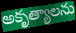
అకృత్యాలను